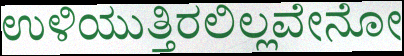
ಉಳಿಯುತ್ತಿರಲಿಲ್ಲವೇನೋ